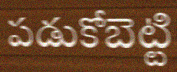
పడుకోబెట్టి